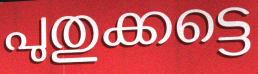
പുതുക്കട്ടെ